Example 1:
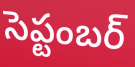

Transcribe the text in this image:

సెప్టంబర్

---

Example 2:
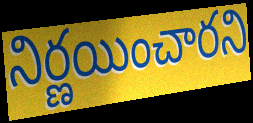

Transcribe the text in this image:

నిర్ణయించారని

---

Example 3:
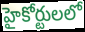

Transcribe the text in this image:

హైకోర్టులలో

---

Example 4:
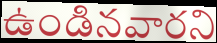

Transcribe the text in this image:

ఉండినవారని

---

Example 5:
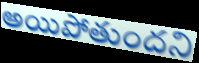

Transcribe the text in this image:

అయిపోతుందని